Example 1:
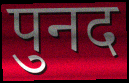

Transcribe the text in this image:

पुनद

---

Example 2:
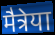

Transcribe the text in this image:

मैत्रेया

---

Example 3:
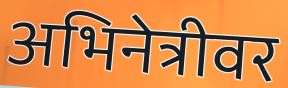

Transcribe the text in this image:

अभिनेत्रीवर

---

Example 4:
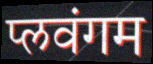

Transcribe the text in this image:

प्लवंगम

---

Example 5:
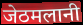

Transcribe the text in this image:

जेठमलानी